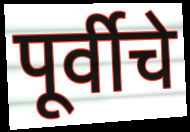
पूर्वीचे